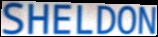
SHELDON